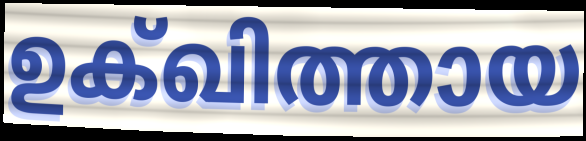
ഉക്ഖിത്തായ